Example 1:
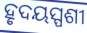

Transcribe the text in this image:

ହୃଦୟସ୍ପଶୀ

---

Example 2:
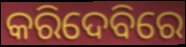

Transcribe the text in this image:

କରିଦେବିରେ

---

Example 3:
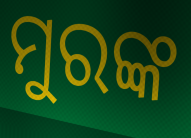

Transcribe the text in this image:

ମୁରଙ୍କ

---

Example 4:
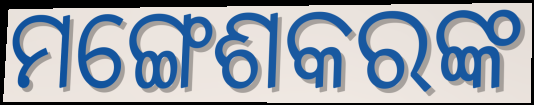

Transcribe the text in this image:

ମଙ୍ଗେଶକରଙ୍କ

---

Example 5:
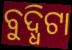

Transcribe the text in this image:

ବୁଦ୍ଧିଟା